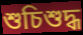
শুচিশুদ্ধ